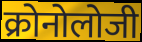
क्रोनोलोजी